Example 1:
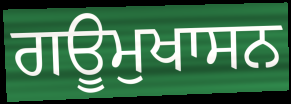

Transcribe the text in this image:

ਗਊਮੁਖਾਸਨ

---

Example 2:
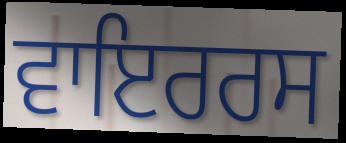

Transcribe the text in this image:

ਵਾਇਰਰਸ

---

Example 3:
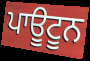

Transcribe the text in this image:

ਪਾਊਟੂਨ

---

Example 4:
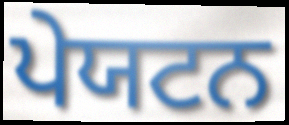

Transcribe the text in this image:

ਪੇਯਟਨ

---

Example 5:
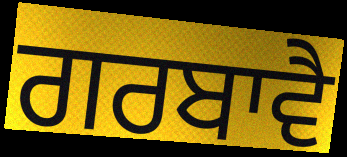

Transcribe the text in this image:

ਗਰਬਾਵੈ